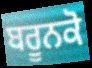
ਬਰੂਨਕੋ